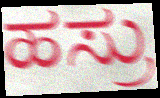
ಹಸ್ರು